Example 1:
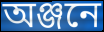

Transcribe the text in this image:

অঞ্জনে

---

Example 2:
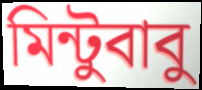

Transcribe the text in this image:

মিন্টুবাবু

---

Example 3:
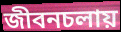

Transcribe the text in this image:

জীবনচলায়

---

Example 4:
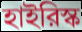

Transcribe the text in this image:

হাইরিস্ক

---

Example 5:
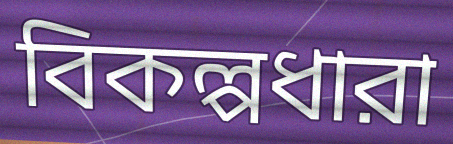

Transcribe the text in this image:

বিকল্পধারা